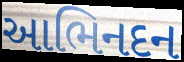
આભિનદન